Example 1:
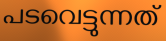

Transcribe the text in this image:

പടവെട്ടുന്നത്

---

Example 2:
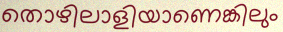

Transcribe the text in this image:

തൊഴിലാളിയാണെങ്കിലും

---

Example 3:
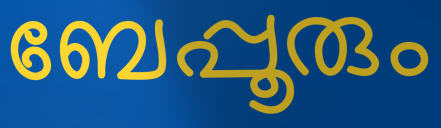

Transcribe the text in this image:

ബേപ്പൂരും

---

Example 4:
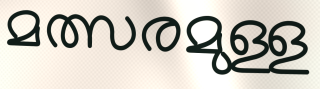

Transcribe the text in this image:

മത്സരമുള്ള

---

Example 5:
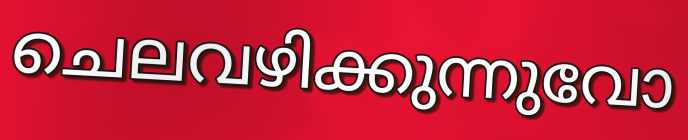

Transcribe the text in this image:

ചെലവഴിക്കുന്നുവോ